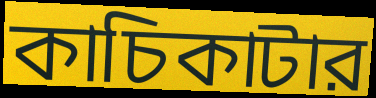
কাচিকাটার